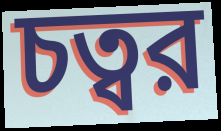
চত্বর